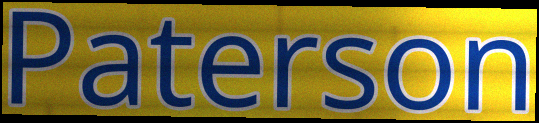
Paterson